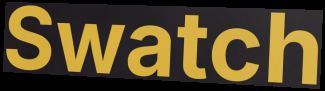
Swatch